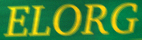
ELORG